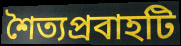
শৈত্যপ্রবাহটি